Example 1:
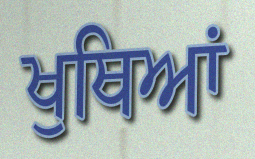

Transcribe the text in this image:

ਖੁਥਿਆਂ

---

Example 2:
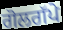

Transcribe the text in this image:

ਗੋਲਗੱਪੇ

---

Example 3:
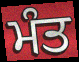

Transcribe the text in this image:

ਮੰਤ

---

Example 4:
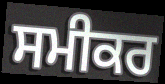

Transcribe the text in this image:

ਸਮੀਕਰ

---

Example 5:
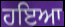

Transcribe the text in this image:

ਹਇਆ